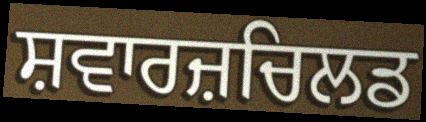
ਸ਼ਵਾਰਜ਼ਚਿਲਡ